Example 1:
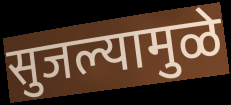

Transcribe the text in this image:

सुजल्यामुळे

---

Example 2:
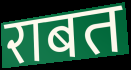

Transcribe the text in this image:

राबत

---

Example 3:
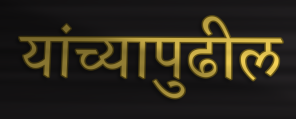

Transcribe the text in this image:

यांच्यापुढील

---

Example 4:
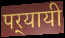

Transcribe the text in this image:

पर्यायी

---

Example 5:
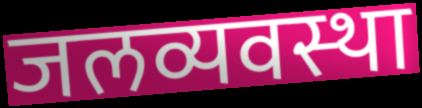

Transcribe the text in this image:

जलव्यवस्था